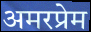
अमरप्रेम